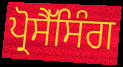
ਪ੍ਰੋਸੈੱਸਿੰਗ